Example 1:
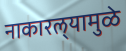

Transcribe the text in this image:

नाकारल्यामुळे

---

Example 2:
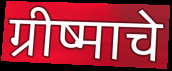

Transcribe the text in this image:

ग्रीष्माचे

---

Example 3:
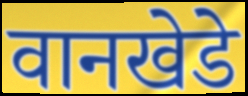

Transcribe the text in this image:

वानखेडे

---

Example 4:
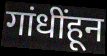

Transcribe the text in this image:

गांधींहून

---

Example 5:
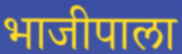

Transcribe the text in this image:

भाजीपाला